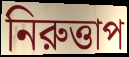
নিরুত্তাপ